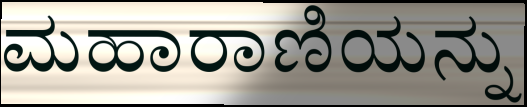
ಮಹಾರಾಣಿಯನ್ನು